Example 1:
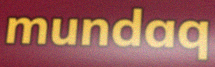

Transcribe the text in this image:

mundaq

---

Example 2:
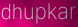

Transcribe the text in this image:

dhupkar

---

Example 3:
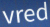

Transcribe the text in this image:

vred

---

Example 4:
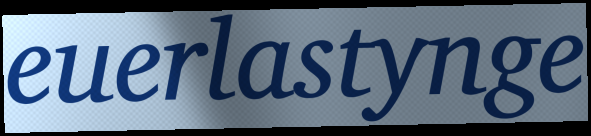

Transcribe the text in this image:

euerlastynge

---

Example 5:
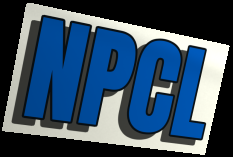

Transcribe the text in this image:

NPCL